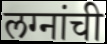
लग्नांची